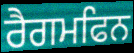
ਰੈਗਮਫਿਨ